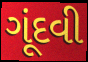
ગૂંદવી